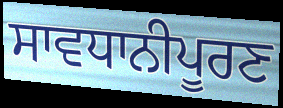
ਸਾਵਧਾਨੀਪੂਰਣ